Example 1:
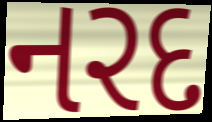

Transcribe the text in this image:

નરદ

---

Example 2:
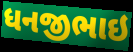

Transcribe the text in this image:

ધનજીભાઇ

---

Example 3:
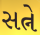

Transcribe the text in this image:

સત્ને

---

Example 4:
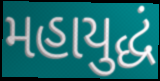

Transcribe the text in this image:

મહાયુદ્ધં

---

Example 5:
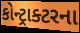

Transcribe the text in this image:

કોન્ટ્રાક્ટરના